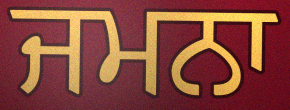
ਜਮਨਾ